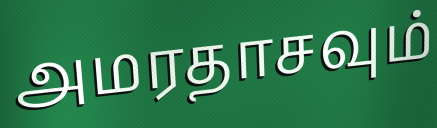
அமரதாசவும்